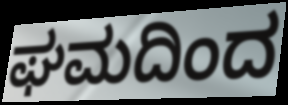
ಘಮದಿಂದ